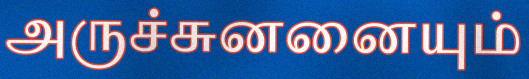
அருச்சுனனையும்